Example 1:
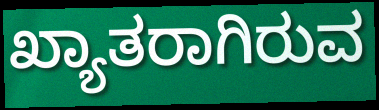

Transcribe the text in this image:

ಖ್ಯಾತರಾಗಿರುವ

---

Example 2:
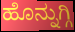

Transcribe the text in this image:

ಹೊನ್ನುಗ್ಗಿ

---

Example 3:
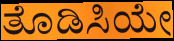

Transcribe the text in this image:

ತೊಡಿಸಿಯೇ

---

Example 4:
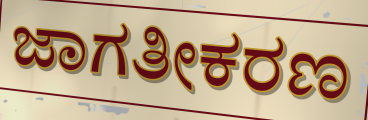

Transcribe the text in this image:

ಜಾಗತೀಕರಣ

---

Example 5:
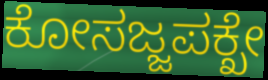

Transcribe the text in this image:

ಕೋಸಜ್ಜಪಕ್ಖೇ